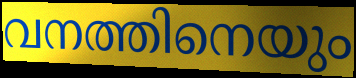
വനത്തിനെയും